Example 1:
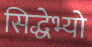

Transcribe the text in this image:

सिद्धेभ्यो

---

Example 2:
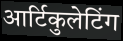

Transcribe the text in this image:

आर्टिकुलेटिंग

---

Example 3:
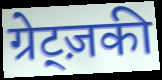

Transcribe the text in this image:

ग्रेट्ज़की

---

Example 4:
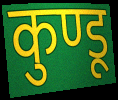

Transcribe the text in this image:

कुण्डू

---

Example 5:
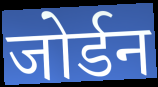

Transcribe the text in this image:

जोर्डन